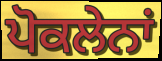
ਪੋਕਲੇਨਾਂ